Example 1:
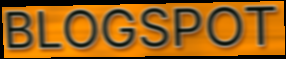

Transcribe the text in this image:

BLOGSPOT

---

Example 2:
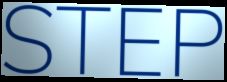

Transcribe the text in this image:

STEP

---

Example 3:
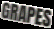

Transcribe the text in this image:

GRAPES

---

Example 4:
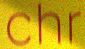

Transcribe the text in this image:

chr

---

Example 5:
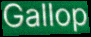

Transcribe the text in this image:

Gallop